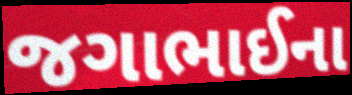
જગાભાઈના